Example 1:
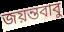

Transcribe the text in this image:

জয়ন্তবাবু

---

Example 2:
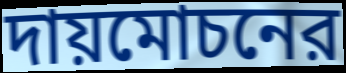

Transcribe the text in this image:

দায়মোচনের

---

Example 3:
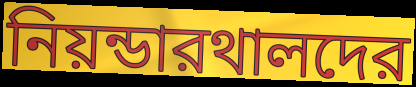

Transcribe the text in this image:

নিয়ন্ডারথালদের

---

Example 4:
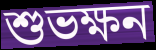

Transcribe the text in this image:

শুভক্ষন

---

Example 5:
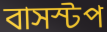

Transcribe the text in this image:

বাসস্টপ